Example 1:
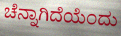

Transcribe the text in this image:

ಚೆನ್ನಾಗಿದೆಯೆಂದು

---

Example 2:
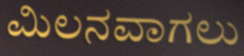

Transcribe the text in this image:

ಮಿಲನವಾಗಲು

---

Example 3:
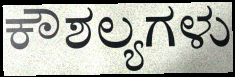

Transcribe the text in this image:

ಕೌಶಲ್ಯಗಳು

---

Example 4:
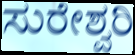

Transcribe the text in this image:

ಸುರೇಶ್ವರಿ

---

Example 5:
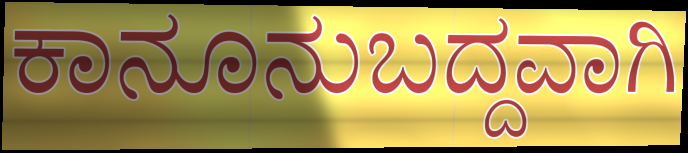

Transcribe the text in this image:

ಕಾನೂನುಬದ್ದವಾಗಿ